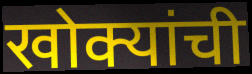
खोक्यांची